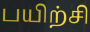
பயிற்சி